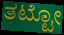
ತಟ್ಟೋ